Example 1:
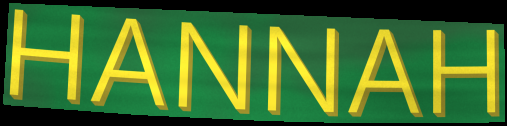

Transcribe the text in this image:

HANNAH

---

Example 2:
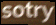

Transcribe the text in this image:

sotry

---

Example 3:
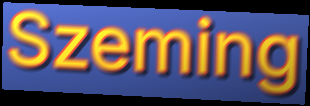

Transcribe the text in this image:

Szeming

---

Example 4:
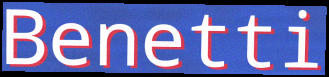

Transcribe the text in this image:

Benetti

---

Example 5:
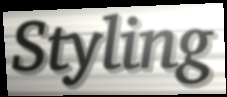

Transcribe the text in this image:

Styling